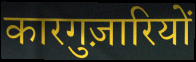
कारगुज़ारियों